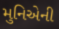
મુનિએની